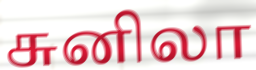
சுனிலா